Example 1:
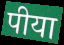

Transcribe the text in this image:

पीया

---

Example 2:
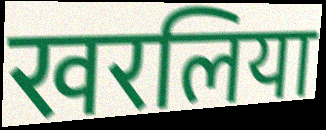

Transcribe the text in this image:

खरलिया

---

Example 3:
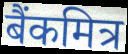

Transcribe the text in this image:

बैंकमित्र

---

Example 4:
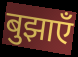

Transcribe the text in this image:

बुझाएँ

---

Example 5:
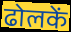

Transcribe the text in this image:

ढोलकें